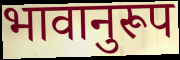
भावानुरूप